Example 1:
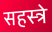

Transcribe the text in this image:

सहस्त्रे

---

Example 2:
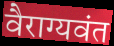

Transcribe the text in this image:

वैराग्यवंत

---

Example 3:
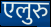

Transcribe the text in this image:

एलुरु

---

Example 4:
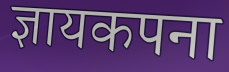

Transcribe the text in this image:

ज्ञायकपना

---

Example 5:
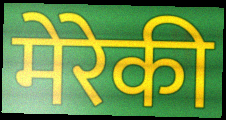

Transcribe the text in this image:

मेरेकी